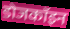
डोजकॉइन